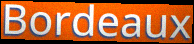
Bordeaux